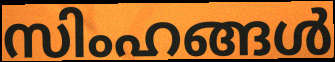
സിംഹങ്ങൾ